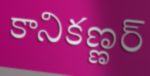
కానికణ్ణర్